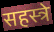
सहस्त्रे